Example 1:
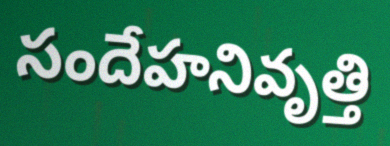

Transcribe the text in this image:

సందేహనివృత్తి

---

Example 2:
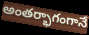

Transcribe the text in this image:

అంతర్భాగంగానే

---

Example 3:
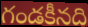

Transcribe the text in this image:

గండకీనది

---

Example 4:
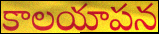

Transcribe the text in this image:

కాలయాపన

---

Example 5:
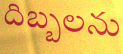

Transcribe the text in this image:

దిబ్బలను